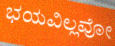
ಭಯವಿಲ್ಲವೋ